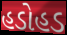
હડોહડ